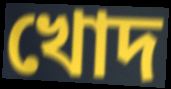
খোদ